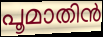
പൂമാതിൻ